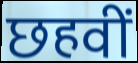
छहवीं